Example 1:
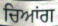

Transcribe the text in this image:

ਚਿਆਂਗ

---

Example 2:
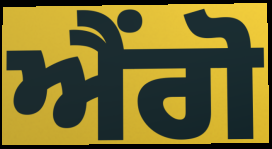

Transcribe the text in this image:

ਐਂਗੋ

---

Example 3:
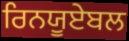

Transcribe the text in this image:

ਰਿਨਯੂਏਬਲ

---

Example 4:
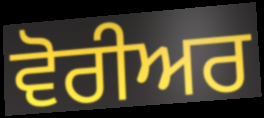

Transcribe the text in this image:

ਵੋਰੀਅਰ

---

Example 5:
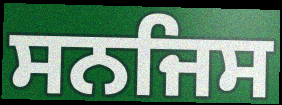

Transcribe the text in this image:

ਸਨਜਿਸ